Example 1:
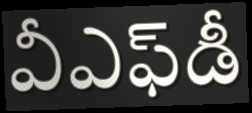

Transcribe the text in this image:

వీఎఫ్‌డీ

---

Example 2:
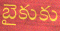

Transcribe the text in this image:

బైకుకు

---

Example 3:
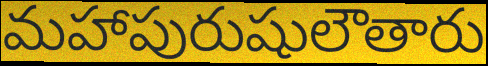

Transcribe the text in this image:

మహాపురుషులౌతారు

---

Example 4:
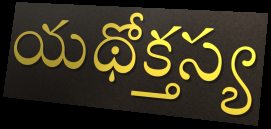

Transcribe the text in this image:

యథోక్తస్య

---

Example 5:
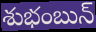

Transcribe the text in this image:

శుభంబున్